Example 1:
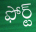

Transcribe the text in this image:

ఫోర్ట్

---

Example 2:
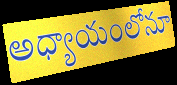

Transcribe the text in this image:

అధ్యాయంలోనూ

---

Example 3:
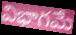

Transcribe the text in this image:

విభాగమే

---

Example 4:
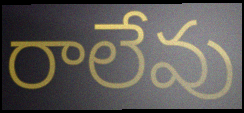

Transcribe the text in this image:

రాలేవు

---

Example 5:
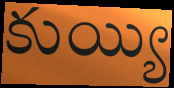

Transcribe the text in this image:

కుయ్యి